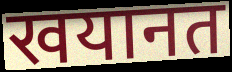
खयानत